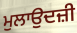
ਮੁਲਾਉਦਜ਼ੀ